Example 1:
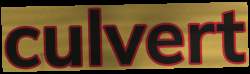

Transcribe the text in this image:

culvert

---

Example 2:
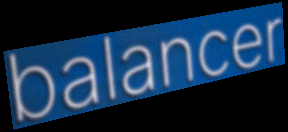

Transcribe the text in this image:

balancer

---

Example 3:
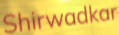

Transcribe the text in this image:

Shirwadkar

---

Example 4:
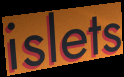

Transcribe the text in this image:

islets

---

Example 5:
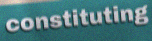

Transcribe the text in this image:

constituting